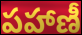
పహాణీ